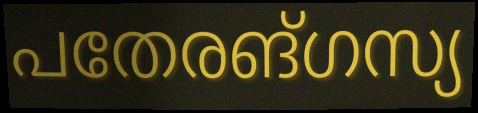
പതേരങ്ഗസ്യ